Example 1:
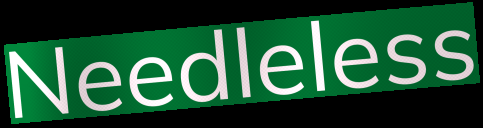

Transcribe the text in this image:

Needleless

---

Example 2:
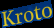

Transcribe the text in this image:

Kroto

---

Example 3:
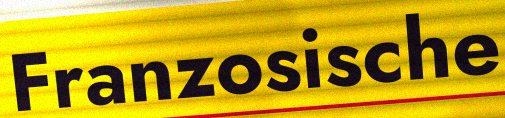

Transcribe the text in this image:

Franzosische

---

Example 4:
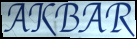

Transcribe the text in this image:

AKBAR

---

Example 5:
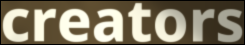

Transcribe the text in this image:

creators